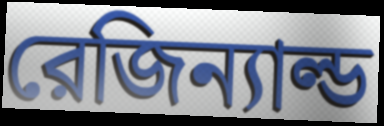
রেজিন্যাল্ড